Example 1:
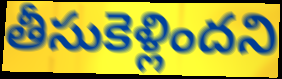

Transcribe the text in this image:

తీసుకెళ్లిందని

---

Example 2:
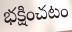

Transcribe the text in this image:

భక్షించటం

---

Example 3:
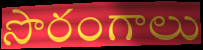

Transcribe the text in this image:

సొరంగాలు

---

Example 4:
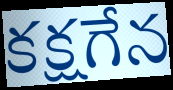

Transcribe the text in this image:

కక్షగేన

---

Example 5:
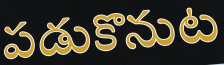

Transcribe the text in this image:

పడుకొనుట